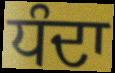
ਧੰਦਾ